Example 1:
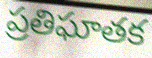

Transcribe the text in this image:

ప్రతిఘాతక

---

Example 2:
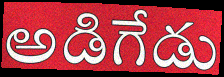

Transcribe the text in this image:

అడిగేడు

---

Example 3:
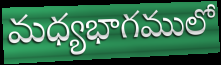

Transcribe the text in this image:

మధ్యభాగములో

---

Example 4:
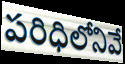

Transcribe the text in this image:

పరిధిలోనివే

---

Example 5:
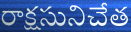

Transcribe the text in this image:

రాక్షసునిచేత